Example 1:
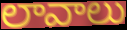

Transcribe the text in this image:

లావాలు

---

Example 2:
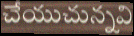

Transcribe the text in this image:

చేయుచున్నవి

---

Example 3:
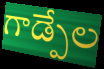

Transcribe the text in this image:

గాడ్పేల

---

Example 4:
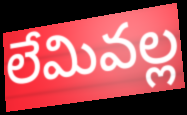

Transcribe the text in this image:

లేమివల్ల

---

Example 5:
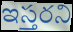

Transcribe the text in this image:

ఇస్తరని